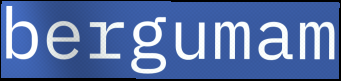
bergumam